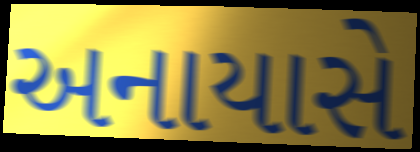
અનાયાસે